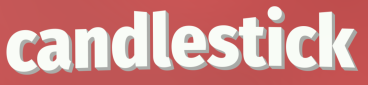
candlestick